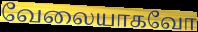
வேலையாகவோ